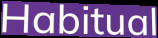
Habitual